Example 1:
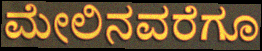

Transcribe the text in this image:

ಮೇಲಿನವರೆಗೂ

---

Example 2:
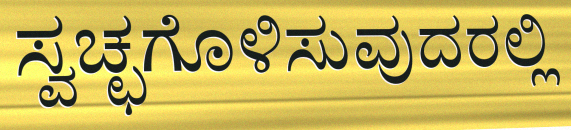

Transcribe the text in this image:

ಸ್ವಚ್ಛಗೊಳಿಸುವುದರಲ್ಲಿ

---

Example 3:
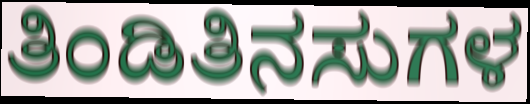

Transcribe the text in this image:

ತಿಂಡಿತಿನಸುಗಳ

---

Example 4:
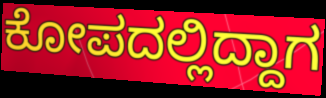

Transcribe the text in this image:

ಕೋಪದಲ್ಲಿದ್ದಾಗ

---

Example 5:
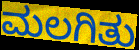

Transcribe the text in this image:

ಮಲಗಿತು